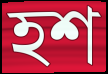
হশ